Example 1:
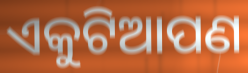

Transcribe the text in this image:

ଏକୁଟିଆପଣ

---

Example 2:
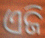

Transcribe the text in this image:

ଏଜି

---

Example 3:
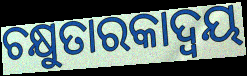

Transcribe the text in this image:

ଚକ୍ଷୁତାରକାଦ୍ଵୟ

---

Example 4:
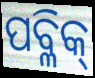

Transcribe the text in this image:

ପବ୍ଳିକ୍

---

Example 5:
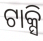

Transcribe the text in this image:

ଟାକ୍ସି